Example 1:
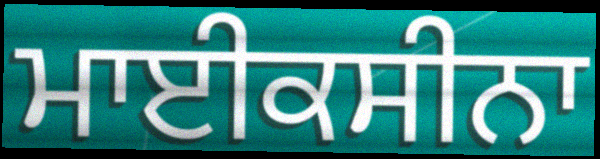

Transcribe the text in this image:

ਮਾਈਕਸੀਨਾ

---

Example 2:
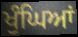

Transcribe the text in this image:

ਖੁੰਘਿਆਂ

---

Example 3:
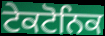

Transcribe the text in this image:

ਟੇਕਟੋਨਿਕ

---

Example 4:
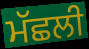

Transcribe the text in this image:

ਮੱਛਲੀ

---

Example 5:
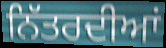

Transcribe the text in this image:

ਨਿੱਤਰਦੀਆਂ